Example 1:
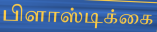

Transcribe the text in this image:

பிளாஸ்டிக்கை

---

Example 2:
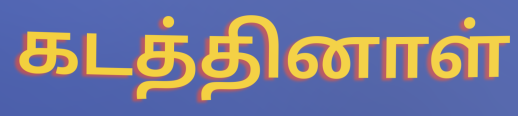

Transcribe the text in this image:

கடத்தினாள்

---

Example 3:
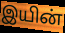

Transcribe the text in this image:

இயின்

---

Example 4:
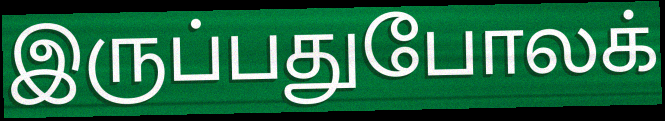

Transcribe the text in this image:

இருப்பதுபோலக்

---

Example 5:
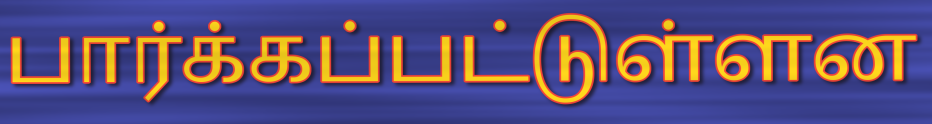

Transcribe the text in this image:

பார்க்கப்பட்டுள்ளன